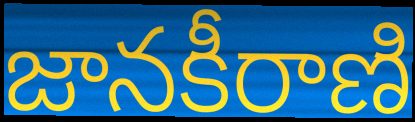
జానకీరాణి